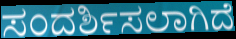
ಸಂದರ್ಶಿಸಲಾಗಿದೆ